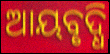
ଆୟବୃଦ୍ଧି